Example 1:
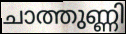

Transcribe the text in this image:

ചാത്തുണ്ണി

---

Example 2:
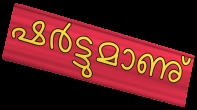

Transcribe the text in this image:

ഷർട്ടുമാണു്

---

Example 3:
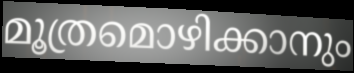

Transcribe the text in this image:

മൂത്രമൊഴിക്കാനും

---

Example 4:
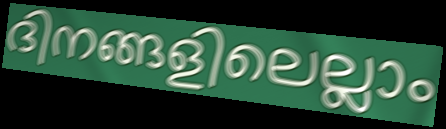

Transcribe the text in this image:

ദിനങ്ങളിലെല്ലാം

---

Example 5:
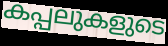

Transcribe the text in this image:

കപ്പലുകളുടെ